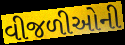
વીજળીઓની